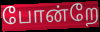
போன்றே